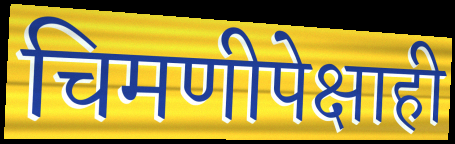
चिमणीपेक्षाही